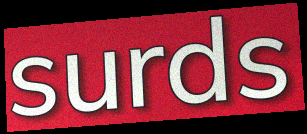
surds